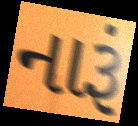
નારૂં